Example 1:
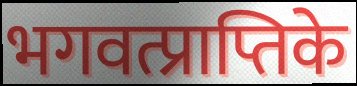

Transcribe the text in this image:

भगवत्प्राप्तिके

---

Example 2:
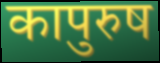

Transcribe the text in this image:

कापुरुष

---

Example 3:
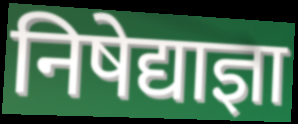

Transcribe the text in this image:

निषेद्याज्ञा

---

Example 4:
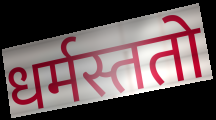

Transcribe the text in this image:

धर्मस्ततो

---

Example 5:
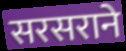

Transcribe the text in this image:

सरसराने